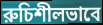
রুচিশীলভাবে